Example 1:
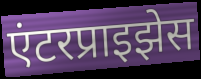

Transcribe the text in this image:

एंटरप्राइझेस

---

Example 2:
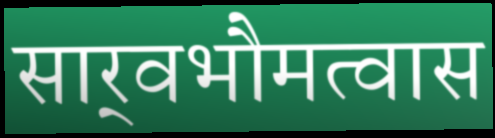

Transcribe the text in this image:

सार्वभौमत्वास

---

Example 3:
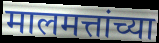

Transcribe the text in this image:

मालमत्तांच्या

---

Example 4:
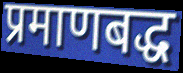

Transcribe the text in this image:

प्रमाणबद्ध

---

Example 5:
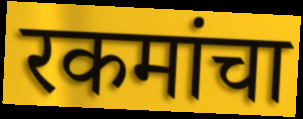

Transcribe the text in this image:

रकमांचा